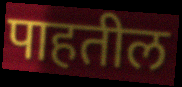
पाहतील